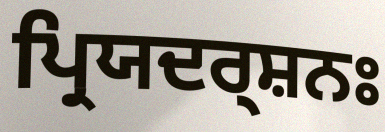
ਪ੍ਰਿਯਦਰ੍ਸ਼ਨਃ